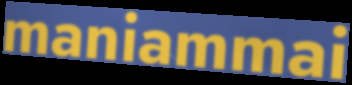
maniammai